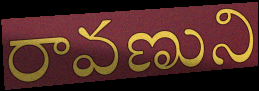
రావణుని